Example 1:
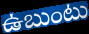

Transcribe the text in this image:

ఉబుంటు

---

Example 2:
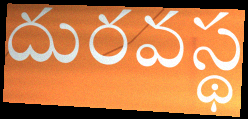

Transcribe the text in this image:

దురవస్థ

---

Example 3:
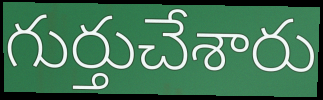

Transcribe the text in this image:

గుర్తుచేశారు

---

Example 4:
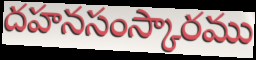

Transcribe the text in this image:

దహనసంస్కారము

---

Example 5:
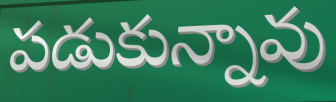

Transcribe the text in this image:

పడుకున్నావు